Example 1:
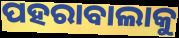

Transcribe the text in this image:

ପହରାବାଲାକୁ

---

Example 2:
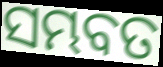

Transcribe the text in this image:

ସମ୍ଭବତ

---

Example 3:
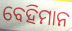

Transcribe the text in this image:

ବେହିମାନ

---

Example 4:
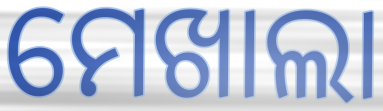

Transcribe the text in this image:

ମେଖାଲା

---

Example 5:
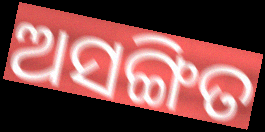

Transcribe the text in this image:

ଅସଙ୍ଗିତ